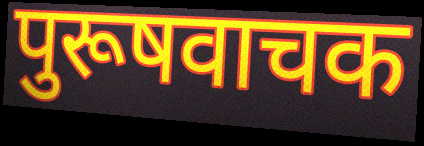
पुरूषवाचक